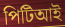
পিটিআই